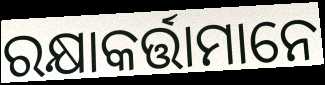
ରକ୍ଷାକର୍ତ୍ତାମାନେ